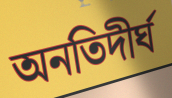
অনতিদীর্ঘ